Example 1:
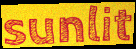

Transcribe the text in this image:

sunlit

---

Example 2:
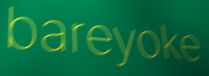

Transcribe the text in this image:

bareyoke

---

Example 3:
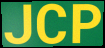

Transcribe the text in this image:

JCP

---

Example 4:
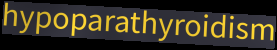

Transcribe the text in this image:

hypoparathyroidism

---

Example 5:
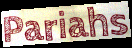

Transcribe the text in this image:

Pariahs